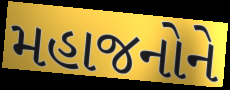
મહાજનોને